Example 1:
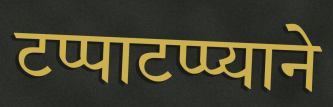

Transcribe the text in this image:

टप्पाटप्प्याने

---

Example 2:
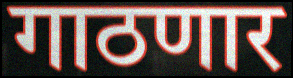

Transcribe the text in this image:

गाठणार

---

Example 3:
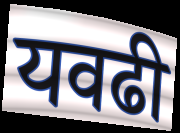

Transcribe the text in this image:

यवढी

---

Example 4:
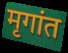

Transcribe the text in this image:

मृगांत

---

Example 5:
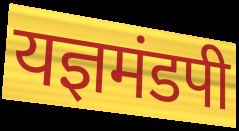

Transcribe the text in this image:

यज्ञमंडपी